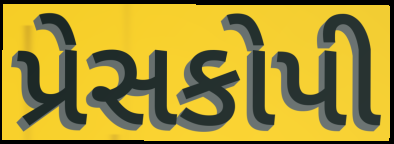
પ્રેસકોપી